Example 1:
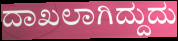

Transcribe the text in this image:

ದಾಖಲಾಗಿದ್ದುದು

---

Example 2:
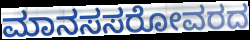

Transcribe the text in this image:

ಮಾನಸಸರೋವರದ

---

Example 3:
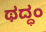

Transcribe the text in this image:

ಥದ್ಧಂ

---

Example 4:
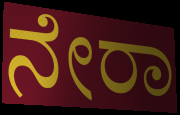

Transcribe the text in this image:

ನೇರಾ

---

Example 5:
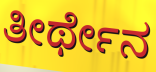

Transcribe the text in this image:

ತೀರ್ಥೇನ